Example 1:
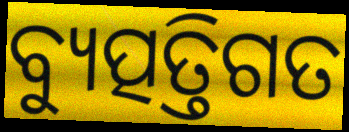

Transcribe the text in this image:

ବ୍ୟୁତ୍ପତ୍ତିଗତ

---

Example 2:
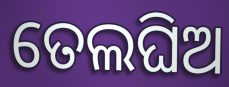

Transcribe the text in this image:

ତେଲଘିଅ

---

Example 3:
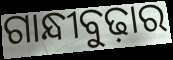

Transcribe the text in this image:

ଗାନ୍ଧୀବୁଢ଼ାର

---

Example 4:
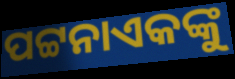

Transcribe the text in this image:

ପଟ୍ଟନାଏକଙ୍କୁ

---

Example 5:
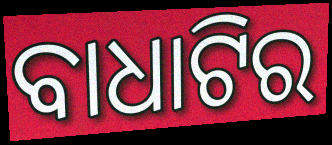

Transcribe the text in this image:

ବାଧାଟିର